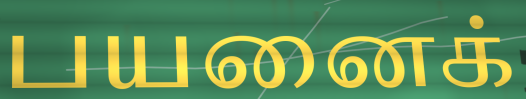
பயனைக்